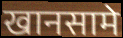
खानसामे